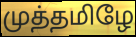
முத்தமிழே